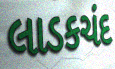
લાડકચંદ